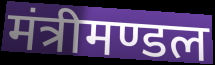
मंत्रीमण्डल